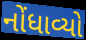
નોંધાવ્યો